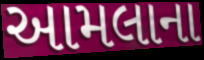
આમલાના